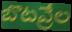
బొటవ్రేల